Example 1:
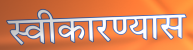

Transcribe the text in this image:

स्वीकारण्यास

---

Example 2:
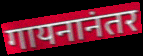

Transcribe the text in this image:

गायनानंतर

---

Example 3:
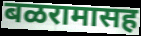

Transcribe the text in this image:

बळरामासह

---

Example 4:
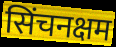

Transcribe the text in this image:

सिंचनक्षम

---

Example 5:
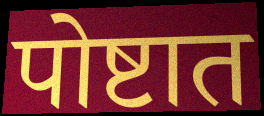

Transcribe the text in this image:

पोष्टात